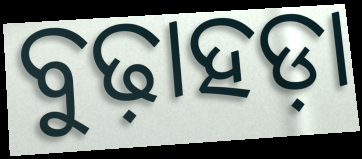
ବୁଢ଼ାହଡ଼ା